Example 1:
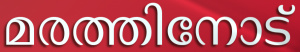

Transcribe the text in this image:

മരത്തിനോട്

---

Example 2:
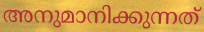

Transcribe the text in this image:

അനുമാനിക്കുന്നത്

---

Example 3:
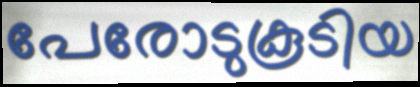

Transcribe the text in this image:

പേരോടുകൂടിയ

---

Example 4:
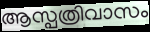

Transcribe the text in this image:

ആസ്പത്രിവാസം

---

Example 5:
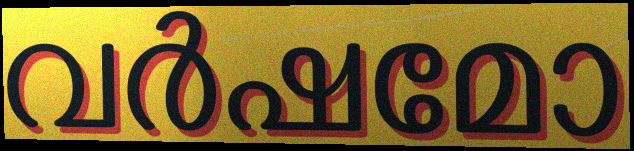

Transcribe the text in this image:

വർഷമോ